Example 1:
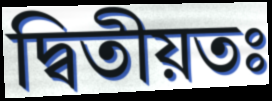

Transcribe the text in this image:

দ্বিতীয়তঃ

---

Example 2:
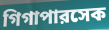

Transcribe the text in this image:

গিগাপারসেক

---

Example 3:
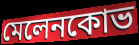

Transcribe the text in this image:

মেলেনকোভ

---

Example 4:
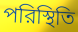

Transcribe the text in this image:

পরিস্থিতি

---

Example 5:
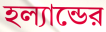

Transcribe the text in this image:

হল্যান্ডের